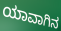
ಯಾವಾಗಿನ